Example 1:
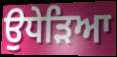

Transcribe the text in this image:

ਉਧੇੜਿਆ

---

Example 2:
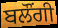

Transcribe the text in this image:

ਬਲੌਂਗੀ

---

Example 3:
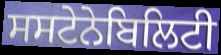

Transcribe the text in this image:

ਸਸਟੇਨੇਬਿਲਿਟੀ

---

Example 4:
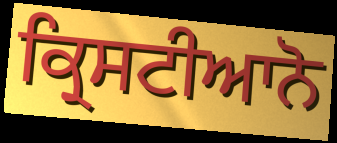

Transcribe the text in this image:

ਕ੍ਰਿਸਟੀਆਨੋ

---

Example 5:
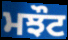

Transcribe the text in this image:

ਮਝੌਟ